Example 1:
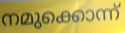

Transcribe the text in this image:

നമുക്കൊന്ന്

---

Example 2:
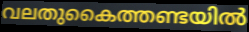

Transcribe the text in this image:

വലതുകൈത്തണ്ടയിൽ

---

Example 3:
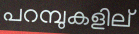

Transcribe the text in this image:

പറമ്പുകളില്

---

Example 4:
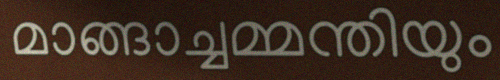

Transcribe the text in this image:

മാങ്ങാച്ചമ്മന്തിയും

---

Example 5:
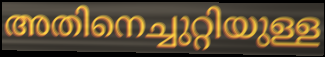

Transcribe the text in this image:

അതിനെച്ചുറ്റിയുള്ള